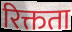
रिक्तता